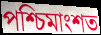
পশ্চিমাংশত